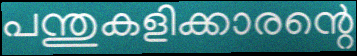
പന്തുകളിക്കാരന്റെ